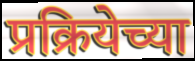
प्रक्रियेच्या